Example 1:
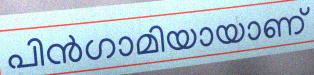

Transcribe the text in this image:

പിൻഗാമിയായാണ്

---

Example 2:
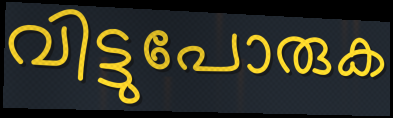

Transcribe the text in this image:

വിട്ടുപോരുക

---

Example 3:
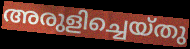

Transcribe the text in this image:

അരുളിച്ചെയ്തു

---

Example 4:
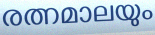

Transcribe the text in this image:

രത്നമാലയും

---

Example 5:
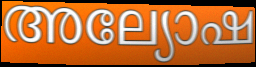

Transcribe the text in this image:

അല്യോഷ